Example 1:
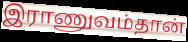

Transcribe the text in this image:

இராணுவம்தான்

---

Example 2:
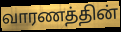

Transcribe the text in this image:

வாரணத்தின்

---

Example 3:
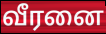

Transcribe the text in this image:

வீரனை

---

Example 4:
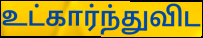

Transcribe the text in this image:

உட்கார்ந்துவிட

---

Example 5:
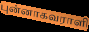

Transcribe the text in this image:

புன்னாகவராளி